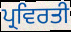
ਪ੍ਰਵਿਰਤੀ